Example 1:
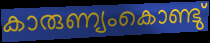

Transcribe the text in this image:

കാരുണ്യംകൊണ്ടു്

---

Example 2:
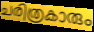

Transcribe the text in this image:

ചരിത്രകാരും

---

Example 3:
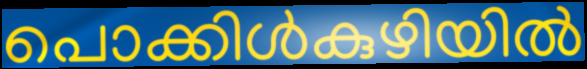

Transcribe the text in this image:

പൊക്കിൾകുഴിയിൽ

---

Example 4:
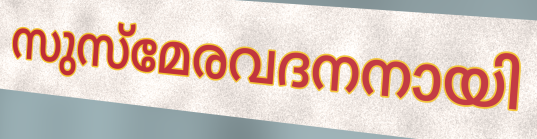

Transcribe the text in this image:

സുസ്മേരവദനനായി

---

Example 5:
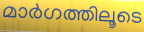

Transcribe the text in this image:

മാർഗത്തിലൂടെ